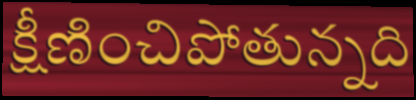
క్షీణించిపోతున్నది